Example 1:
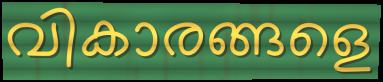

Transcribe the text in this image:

വികാരങ്ങളെ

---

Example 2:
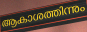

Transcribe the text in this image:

ആകാശത്തിന്നും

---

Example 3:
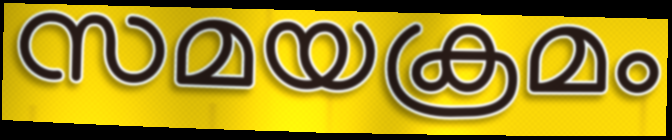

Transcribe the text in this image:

സമയക്രമം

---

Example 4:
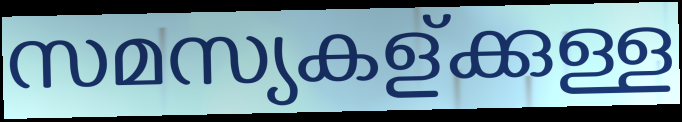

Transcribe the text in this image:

സമസ്യകള്ക്കുള്ള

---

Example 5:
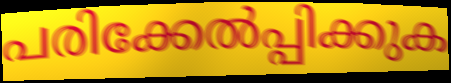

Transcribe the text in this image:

പരിക്കേൽപ്പിക്കുക